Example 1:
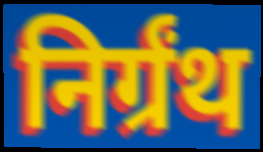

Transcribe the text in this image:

निर्ग्रंथ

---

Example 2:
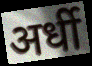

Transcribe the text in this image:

अर्धी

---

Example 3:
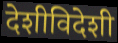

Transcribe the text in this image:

देशीविदेशी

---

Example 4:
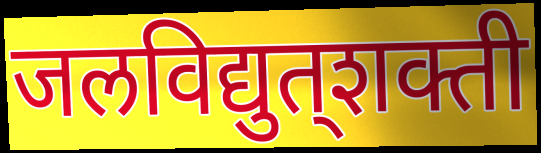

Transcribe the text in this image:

जलविद्युत्‌शक्ती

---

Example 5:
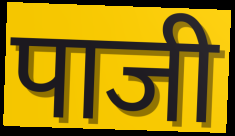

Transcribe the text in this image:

पाजी